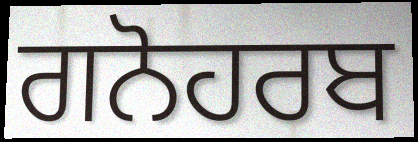
ਗਨੋਹਰਬ